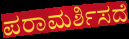
ಪರಾಮರ್ಶಿಸದೆ